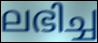
ലഭിച്ച